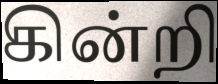
கின்றி